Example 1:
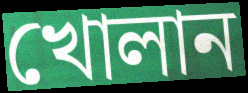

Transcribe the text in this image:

খোলান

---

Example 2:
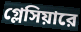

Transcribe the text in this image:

গ্লেসিয়ারে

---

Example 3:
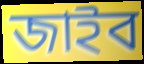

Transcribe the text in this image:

জাইব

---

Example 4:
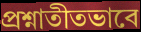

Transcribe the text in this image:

প্রশ্নাতীতভাবে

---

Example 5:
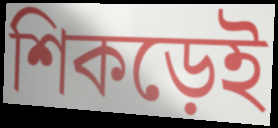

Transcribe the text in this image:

শিকড়েই